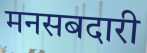
मनसबदारी